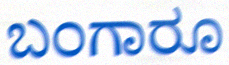
ಬಂಗಾರೂ